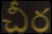
చీర